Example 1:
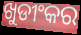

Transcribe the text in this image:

ଖୁଡୀଂକର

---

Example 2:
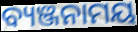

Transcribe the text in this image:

ବ୍ୟଞ୍ଜନାମୟ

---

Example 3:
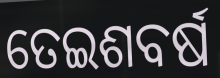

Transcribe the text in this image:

ତେଇଶବର୍ଷ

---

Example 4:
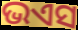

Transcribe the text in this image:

ଭଏସ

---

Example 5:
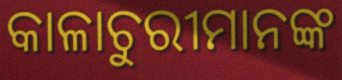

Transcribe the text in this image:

କାଳାଚୁରୀମାନଙ୍କ